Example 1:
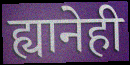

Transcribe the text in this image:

ह्यानेही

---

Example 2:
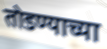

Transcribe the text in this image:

तोडण्याच्या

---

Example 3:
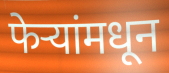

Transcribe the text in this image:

फेऱ्यांमधून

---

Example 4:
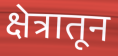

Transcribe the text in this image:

क्षेत्रातून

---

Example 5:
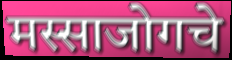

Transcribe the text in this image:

मस्साजोगचे